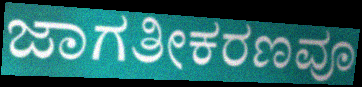
ಜಾಗತೀಕರಣವೂ